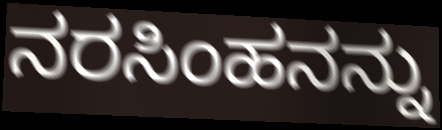
ನರಸಿಂಹನನ್ನು